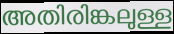
അതിരിങ്കലുള്ള